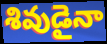
శివుడైనా